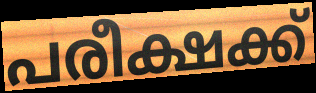
പരീക്ഷക്ക്